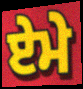
ਏਮੇ